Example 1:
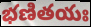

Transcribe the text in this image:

భణితయః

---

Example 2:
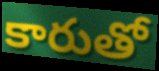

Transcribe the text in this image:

కారుతో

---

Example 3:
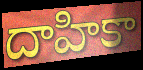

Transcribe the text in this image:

దాహికా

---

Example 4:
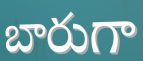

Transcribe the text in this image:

బారుగా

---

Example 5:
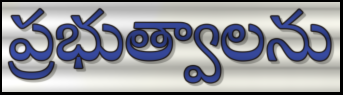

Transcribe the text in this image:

ప్రభుత్వాలను